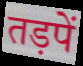
तड़पें